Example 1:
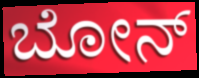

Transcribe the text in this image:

ಬೋನ್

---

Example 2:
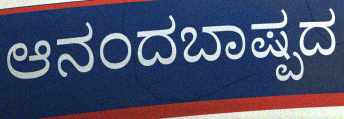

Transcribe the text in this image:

ಆನಂದಬಾಷ್ಪದ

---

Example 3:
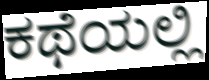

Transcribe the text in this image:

ಕಥೆಯಲ್ಲಿ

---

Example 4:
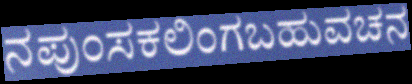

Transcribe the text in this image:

ನಪುಂಸಕಲಿಂಗಬಹುವಚನ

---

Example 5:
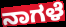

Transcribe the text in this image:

ನಾಗಳೆ